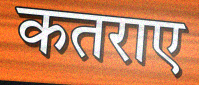
कतराए